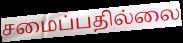
சமைப்பதில்லை